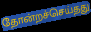
தோன்றச்செய்தது